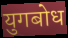
युगबोध